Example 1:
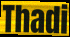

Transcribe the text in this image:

Thadi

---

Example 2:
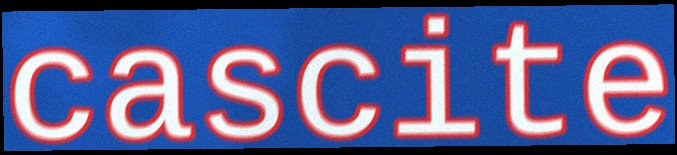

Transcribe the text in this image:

cascite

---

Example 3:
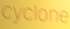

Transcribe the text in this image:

cyclone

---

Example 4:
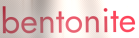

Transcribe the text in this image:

bentonite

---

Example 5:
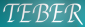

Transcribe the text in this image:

TEBER